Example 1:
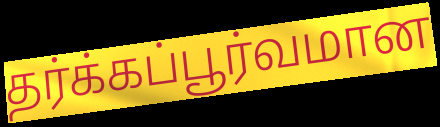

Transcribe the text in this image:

தர்க்கப்பூர்வமான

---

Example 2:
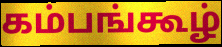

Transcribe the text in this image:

கம்பங்கூழ்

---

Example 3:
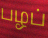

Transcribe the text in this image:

பழப்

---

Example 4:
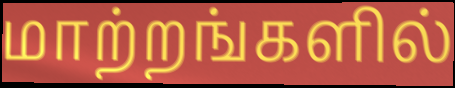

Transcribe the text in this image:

மாற்றங்களில்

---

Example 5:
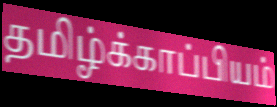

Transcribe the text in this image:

தமிழ்க்காப்பியம்